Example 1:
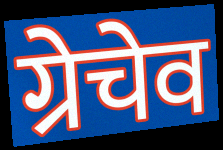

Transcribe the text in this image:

ग्रेचेव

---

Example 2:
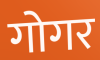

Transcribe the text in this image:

गोगर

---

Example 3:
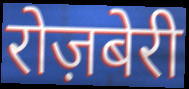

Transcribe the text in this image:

रोज़बेरी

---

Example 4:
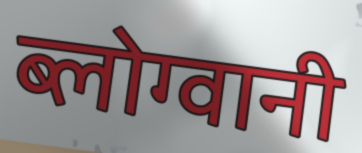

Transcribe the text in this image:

ब्लोग्वानी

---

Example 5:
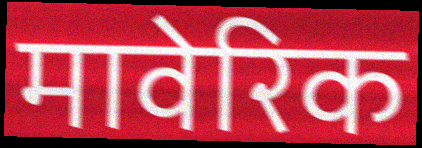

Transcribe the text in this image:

मावेरिक